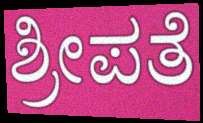
ಶ್ರೀಪತೆ